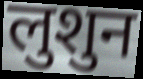
लुशुन